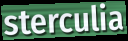
sterculia